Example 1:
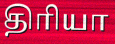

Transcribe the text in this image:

திரியா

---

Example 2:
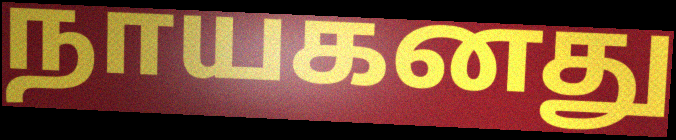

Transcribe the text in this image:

நாயகனது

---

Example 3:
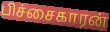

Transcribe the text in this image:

பிச்சைகாரன்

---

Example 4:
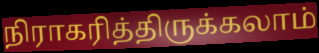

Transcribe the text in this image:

நிராகரித்திருக்கலாம்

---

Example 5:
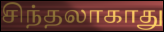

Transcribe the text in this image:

சிந்தலாகாது